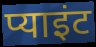
प्याइंट